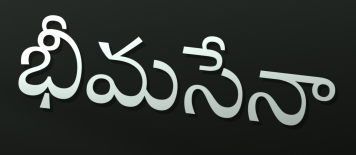
భీమసేనా